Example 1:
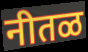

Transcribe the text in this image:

नीतळ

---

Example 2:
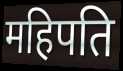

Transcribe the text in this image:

महिपति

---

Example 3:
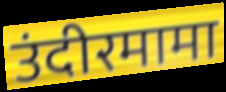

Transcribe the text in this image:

उंदीरमामा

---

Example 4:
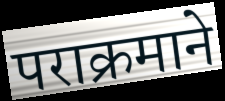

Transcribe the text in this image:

पराक्रमाने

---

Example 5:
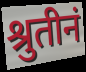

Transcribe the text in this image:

श्रुतीनं